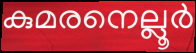
കുമരനെല്ലൂർ